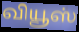
வியூஸ்